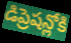
డిప్రెషన్లోకి